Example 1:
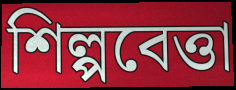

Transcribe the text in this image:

শিল্পবেত্তা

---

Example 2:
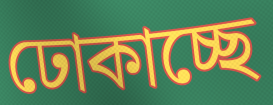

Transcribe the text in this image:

ঢোকাচ্ছে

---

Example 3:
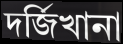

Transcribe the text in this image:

দর্জিখানা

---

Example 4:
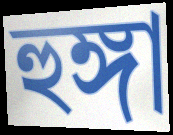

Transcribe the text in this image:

হুঙ্গা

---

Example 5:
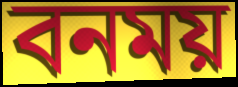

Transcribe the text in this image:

বনময়